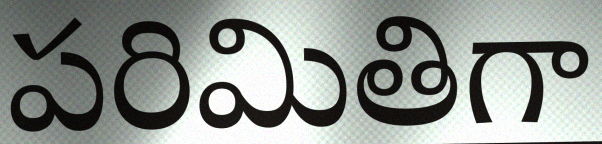
పరిమితిగా